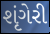
શૃંગેરી